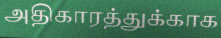
அதிகாரத்துக்காக